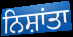
ਨਿਸ਼ਾਂਤਾ